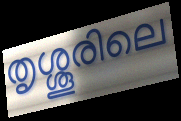
തൃശ്ശൂരിലെ